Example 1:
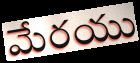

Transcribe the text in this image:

మేరయు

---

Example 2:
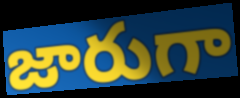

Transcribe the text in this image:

జారుగా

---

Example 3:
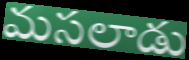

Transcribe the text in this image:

మసలాడు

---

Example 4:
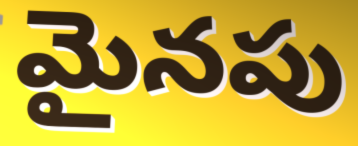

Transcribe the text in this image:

మైనపు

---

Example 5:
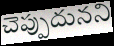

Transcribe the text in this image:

చెప్పుదునని